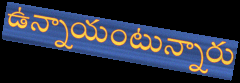
ఉన్నాయంటున్నారు